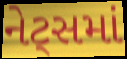
નેટ્સમાં